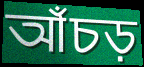
আঁচড়